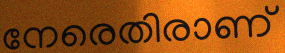
നേരെതിരാണ്